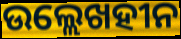
ଉଲ୍ଲେଖହୀନ